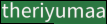
theriyumaa